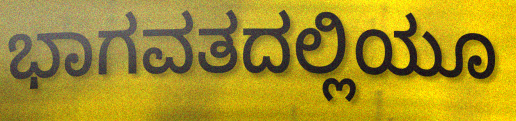
ಭಾಗವತದಲ್ಲಿಯೂ